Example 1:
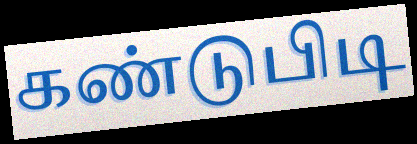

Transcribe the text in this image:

கண்டுபிடி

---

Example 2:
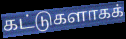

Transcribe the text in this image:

கட்டுகளாகக்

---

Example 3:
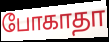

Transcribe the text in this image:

போகாதா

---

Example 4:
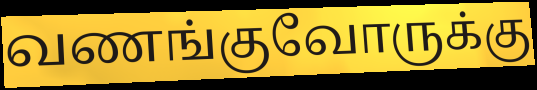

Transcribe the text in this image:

வணங்குவோருக்கு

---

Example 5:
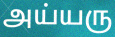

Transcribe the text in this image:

அய்யரு